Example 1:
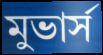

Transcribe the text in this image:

মুভার্স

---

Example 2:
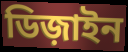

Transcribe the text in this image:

ডিজ়াইন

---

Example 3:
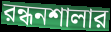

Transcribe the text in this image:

রন্ধনশালার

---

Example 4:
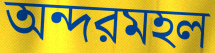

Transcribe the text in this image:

অন্দরমহল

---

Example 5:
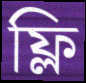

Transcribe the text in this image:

ফ্লি